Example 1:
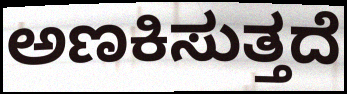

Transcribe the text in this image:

ಅಣಕಿಸುತ್ತದೆ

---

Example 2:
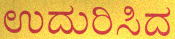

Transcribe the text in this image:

ಉದುರಿಸಿದ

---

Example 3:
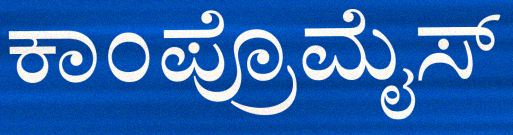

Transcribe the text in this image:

ಕಾಂಪ್ರೊಮೈಸ್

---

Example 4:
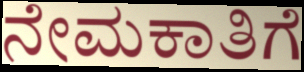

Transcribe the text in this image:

ನೇಮಕಾತಿಗೆ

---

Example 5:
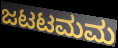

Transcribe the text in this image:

ಜಟಟಮಮ